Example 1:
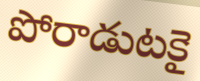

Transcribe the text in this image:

పోరాడుటకై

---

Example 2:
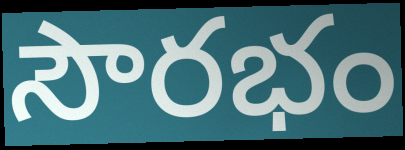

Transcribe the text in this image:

సౌరభం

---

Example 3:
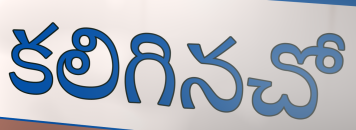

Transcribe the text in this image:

కలిగినచో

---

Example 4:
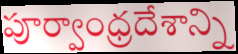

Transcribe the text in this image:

పూర్వాంధ్రదేశాన్ని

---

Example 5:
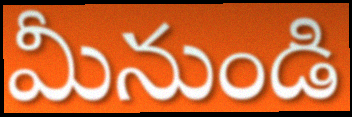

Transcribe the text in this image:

మీనుండి